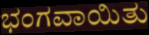
ಭಂಗವಾಯಿತು